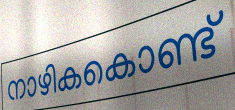
നാഴികകൊണ്ട്